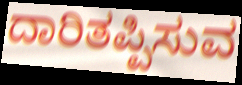
ದಾರಿತಪ್ಪಿಸುವ